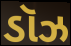
ડૉઝ